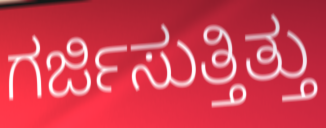
ಗರ್ಜಿಸುತ್ತಿತ್ತು